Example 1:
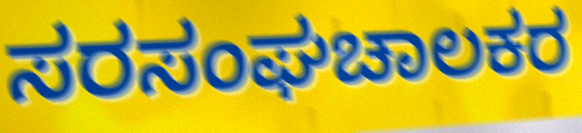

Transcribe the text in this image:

ಸರಸಂಘಚಾಲಕರ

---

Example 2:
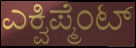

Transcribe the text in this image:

ಎಕ್ವಿಪ್ಮೆಂಟ್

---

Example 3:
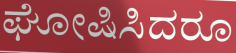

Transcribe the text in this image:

ಘೋಷಿಸಿದರೂ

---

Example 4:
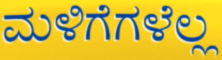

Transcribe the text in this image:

ಮಳಿಗೆಗಳೆಲ್ಲ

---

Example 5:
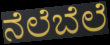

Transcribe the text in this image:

ನೆಲೆಬೆಲೆ